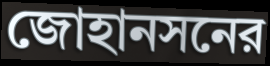
জোহানসনের